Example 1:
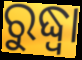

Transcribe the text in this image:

ରୁଦ୍ଧ୍ୱା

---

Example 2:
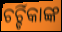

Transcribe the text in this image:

ଚର୍ଚ୍ଚିକାଙ୍କ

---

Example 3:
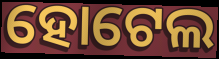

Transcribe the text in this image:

ହୋଟେଲ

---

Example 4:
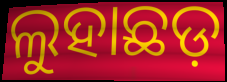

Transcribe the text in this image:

ଲୁହାଛଡ଼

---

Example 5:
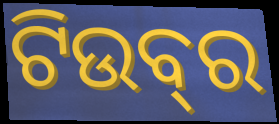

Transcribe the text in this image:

ଟିଉବ୍‍ର